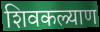
शिवकल्याण